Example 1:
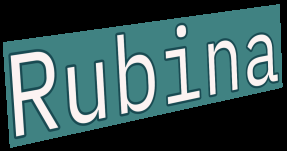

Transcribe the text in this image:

Rubina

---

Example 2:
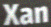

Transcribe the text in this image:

Xan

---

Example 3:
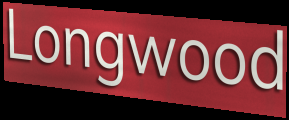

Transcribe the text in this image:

Longwood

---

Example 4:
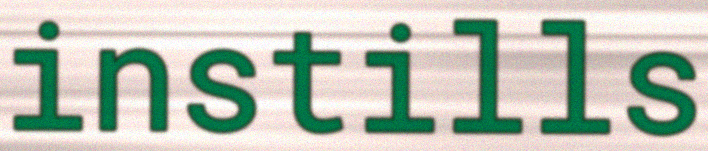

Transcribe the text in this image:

instills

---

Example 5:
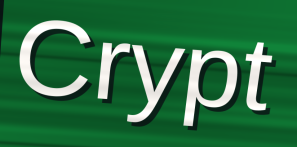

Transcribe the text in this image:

Crypt